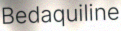
Bedaquiline